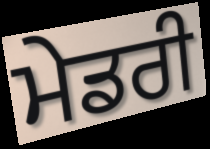
ਮੇਡਰੀ